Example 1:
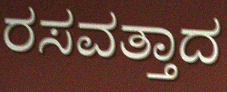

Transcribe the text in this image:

ರಸವತ್ತಾದ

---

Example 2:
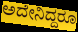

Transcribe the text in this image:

ಅದೇನಿದ್ದರೂ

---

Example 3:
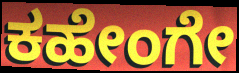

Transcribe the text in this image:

ಕಹೇಂಗೇ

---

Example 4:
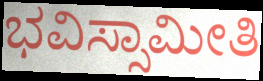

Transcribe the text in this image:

ಭವಿಸ್ಸಾಮೀತಿ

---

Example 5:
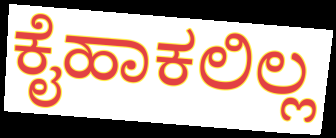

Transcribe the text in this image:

ಕೈಹಾಕಲಿಲ್ಲ